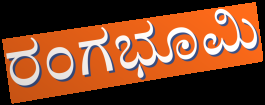
ರಂಗಭೂಮಿ